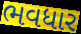
ભવધાર